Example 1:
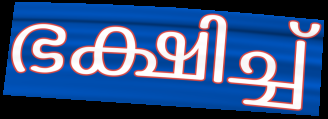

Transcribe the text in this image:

ഭക്ഷിച്ച്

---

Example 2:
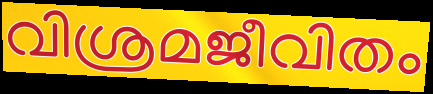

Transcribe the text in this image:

വിശ്രമജീവിതം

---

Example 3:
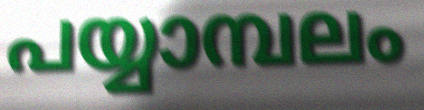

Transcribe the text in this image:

പയ്യാമ്പലം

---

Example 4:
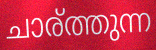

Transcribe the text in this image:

ചാര്ത്തുന്ന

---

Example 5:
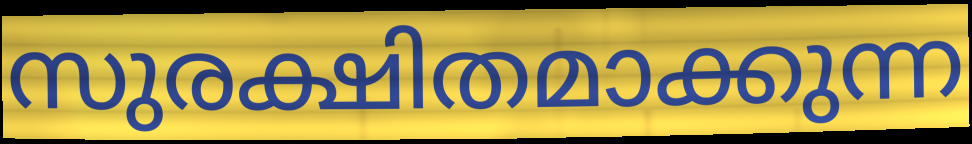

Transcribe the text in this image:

സുരക്ഷിതമാക്കുന്ന